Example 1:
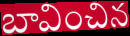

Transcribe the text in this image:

బావించిన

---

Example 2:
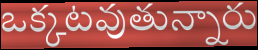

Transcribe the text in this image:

ఒక్కటవుతున్నారు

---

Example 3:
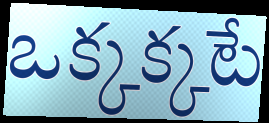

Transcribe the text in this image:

ఒక్కక్కటే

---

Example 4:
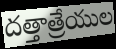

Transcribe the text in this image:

దత్తాత్రేయుల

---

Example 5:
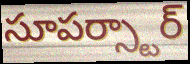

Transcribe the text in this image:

సూపర్స్టార్